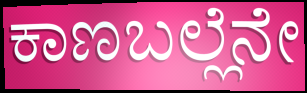
ಕಾಣಬಲ್ಲೆನೇ